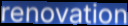
renovation